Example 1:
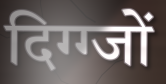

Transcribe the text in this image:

दिग्ग्जों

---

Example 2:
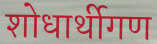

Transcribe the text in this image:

शोधार्थीगण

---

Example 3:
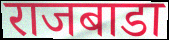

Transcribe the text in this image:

राजबाडा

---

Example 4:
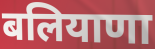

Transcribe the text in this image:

बलियाणा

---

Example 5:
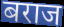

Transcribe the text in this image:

बराज